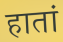
हातां